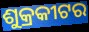
ଶୁକ୍ରକୀଟର